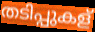
തടിപ്പുകള്